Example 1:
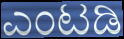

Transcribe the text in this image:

ಎಂಟಡಿ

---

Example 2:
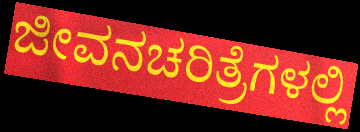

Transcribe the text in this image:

ಜೀವನಚರಿತ್ರೆಗಳಲ್ಲಿ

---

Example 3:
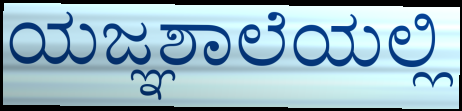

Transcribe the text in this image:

ಯಜ್ಞಶಾಲೆಯಲ್ಲಿ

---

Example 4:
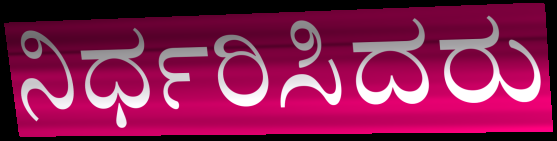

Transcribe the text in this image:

ನಿರ್ಧರಿಸಿದರು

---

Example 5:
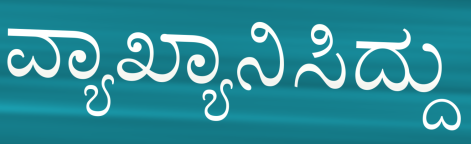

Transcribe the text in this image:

ವ್ಯಾಖ್ಯಾನಿಸಿದ್ದು